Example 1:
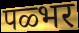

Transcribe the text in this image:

पळ्भर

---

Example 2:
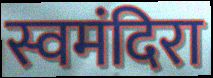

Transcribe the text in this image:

स्वमंदिरा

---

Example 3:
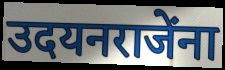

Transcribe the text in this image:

उदयनराजेंना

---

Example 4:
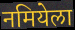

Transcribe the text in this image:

नमियेला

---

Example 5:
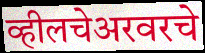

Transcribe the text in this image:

व्हीलचेअरवरचे